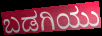
ಬಡಗಿಯು